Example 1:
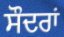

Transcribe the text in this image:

ਸੌਦਰਾਂ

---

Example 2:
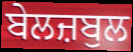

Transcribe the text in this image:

ਬੇਲਜ਼ਬੁਲ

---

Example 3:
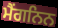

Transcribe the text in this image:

ਮੈਂਗਨਿਨ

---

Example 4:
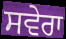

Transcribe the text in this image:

ਸਵੇਰਾ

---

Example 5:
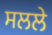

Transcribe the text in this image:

ਸਲਲੇ